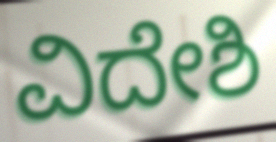
ವಿದೇಶಿ